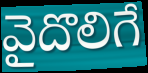
వైదొలిగే